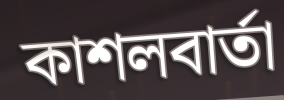
কাশলবার্তা